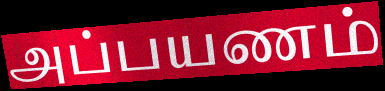
அப்பயணம்